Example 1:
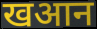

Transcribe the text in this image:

खआन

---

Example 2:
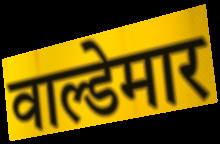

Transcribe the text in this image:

वाल्डेमार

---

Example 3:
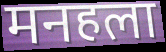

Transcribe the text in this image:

मनहला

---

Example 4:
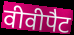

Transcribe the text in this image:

वीवीपैट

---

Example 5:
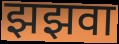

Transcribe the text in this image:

झझवा